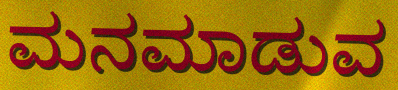
ಮನಮಾಡುವ